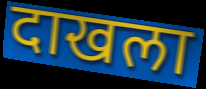
दाखला